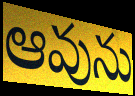
ఆవును